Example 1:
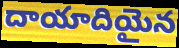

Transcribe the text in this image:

దాయాదియైన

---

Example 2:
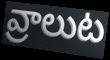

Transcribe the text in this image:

వ్రాలుట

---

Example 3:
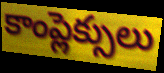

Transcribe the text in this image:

కాంప్లెక్సులు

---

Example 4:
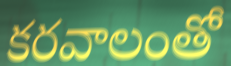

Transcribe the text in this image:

కరవాలంతో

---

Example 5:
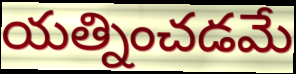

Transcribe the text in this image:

యత్నించడమే